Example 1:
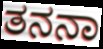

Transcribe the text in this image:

ತನನಾ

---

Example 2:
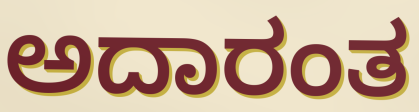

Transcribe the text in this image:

ಅದಾರಂತ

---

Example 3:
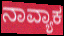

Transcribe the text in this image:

ನಾವ್ಯಾಕ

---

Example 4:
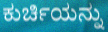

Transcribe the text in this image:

ಕುರ್ಚಿಯನ್ನು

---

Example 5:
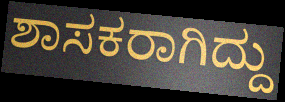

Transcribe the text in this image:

ಶಾಸಕರಾಗಿದ್ದು